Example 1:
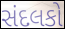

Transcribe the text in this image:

સંદલકો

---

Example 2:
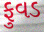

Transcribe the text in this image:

ફુવડ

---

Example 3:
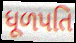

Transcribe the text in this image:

ધૂળપતિ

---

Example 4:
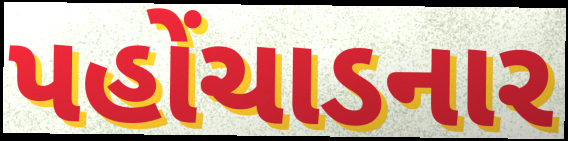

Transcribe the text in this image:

પહોંચાડનાર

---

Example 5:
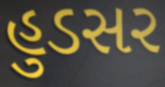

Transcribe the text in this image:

હુડસર